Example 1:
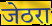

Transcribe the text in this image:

जेठरा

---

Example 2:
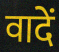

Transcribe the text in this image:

वादें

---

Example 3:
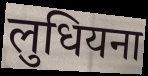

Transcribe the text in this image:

लुधियना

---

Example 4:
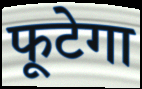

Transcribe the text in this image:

फूटेगा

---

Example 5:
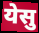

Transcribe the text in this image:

येसु